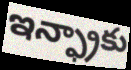
ఇన్ఫ్రాకు